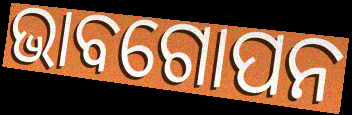
ଭାବଗୋପନ